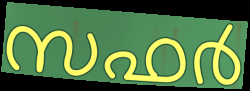
സഫർ